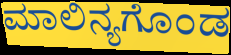
ಮಾಲಿನ್ಯಗೊಂಡ